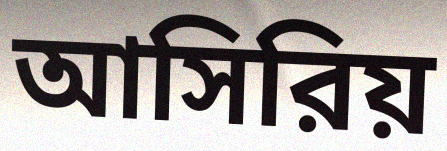
আসিরিয়